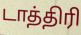
டாத்திரி